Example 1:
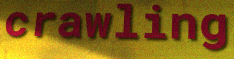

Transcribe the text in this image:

crawling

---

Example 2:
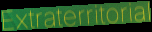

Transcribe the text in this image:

Extraterritorial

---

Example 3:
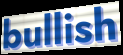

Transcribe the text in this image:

bullish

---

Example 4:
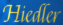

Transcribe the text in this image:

Hiedler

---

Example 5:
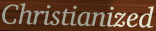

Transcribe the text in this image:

Christianized